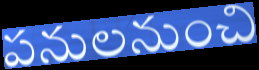
పనులనుంచి